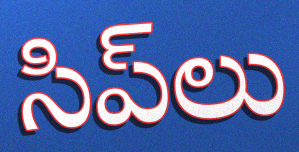
సిప్‌లు